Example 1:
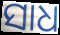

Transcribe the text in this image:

ସାଧ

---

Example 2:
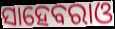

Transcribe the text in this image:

ସାହେବରାଓ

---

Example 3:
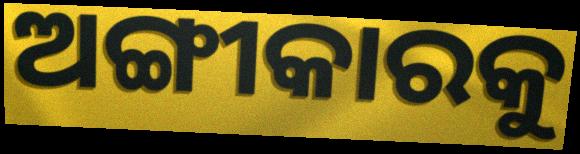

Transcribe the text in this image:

ଅଙ୍ଗୀକାରକୁ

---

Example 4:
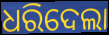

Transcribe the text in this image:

ଧରିଦେଲା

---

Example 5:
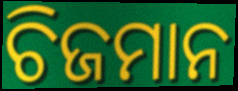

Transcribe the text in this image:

ଚିଜମାନ